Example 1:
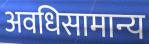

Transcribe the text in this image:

अवधिसामान्य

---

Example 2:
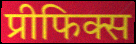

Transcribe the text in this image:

प्रीफिक्स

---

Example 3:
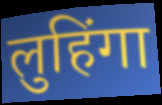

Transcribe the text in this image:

लुहिंगा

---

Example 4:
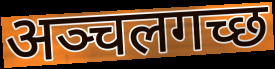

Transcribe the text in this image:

अञ्चलगच्छ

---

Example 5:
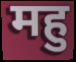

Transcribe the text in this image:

महु